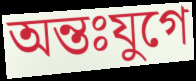
অন্তঃযুগে